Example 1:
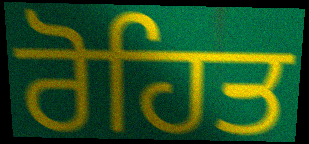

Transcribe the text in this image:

ਰੋਹਿਤ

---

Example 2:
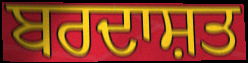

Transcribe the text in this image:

ਬਰਦਾਸ਼ਤ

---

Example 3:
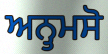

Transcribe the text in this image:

ਅਨ੍ਤਮਸੋ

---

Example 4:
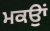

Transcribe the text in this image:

ਮਕਉਾਂ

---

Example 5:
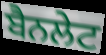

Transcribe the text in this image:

ਬੈਨਲੇਟ